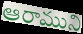
ఆరాముని